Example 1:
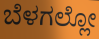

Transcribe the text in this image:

ಬೆಳಗಲ್ಲೋ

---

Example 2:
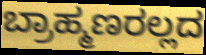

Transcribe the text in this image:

ಬ್ರಾಹ್ಮಣರಲ್ಲದ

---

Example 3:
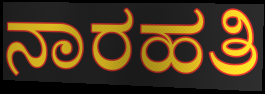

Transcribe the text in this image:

ನಾರಹತಿ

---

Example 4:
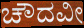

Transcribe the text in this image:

ಚೌದವೀ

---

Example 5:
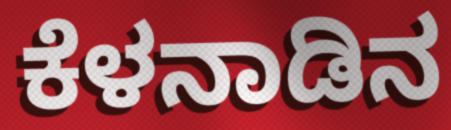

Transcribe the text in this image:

ಕೆಳನಾಡಿನ